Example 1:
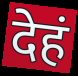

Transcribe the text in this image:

देहं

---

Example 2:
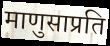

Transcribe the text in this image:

माणुसाप्रति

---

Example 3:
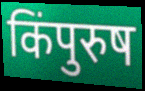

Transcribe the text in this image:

किंपुरुष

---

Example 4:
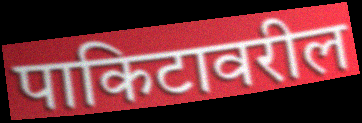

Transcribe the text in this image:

पाकिटावरील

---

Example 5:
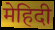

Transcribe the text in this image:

मेहिदी